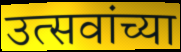
उत्सवांच्या